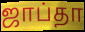
ஜாப்தா